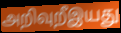
அறிவுறீஇயது